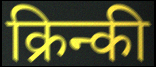
क्रिन्की